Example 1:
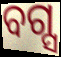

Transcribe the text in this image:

ବଗ୍ସ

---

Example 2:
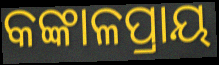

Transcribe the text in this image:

କଙ୍କାଳପ୍ରାୟ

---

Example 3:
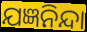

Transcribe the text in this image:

ଯଜ୍ଞନିନ୍ଦା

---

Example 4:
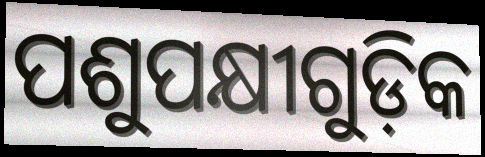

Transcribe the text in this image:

ପଶୁପକ୍ଷୀଗୁଡ଼ିକ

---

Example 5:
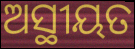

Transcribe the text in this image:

ଅସ୍ଥୀୟତ